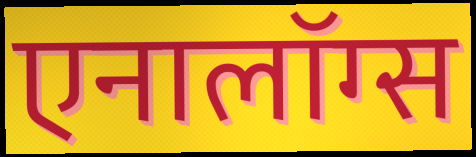
एनालॉग्स